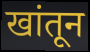
खांतून